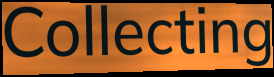
Collecting